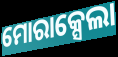
ମୋରାକ୍ସେଲା